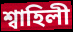
শ্বাহিলী